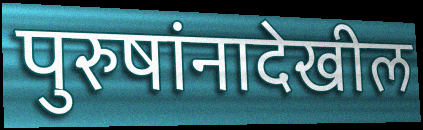
पुरुषांनादेखील